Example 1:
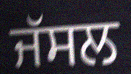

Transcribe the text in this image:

ਜੱਸਲ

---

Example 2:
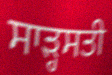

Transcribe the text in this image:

ਸਾੜ੍ਹਸਤੀ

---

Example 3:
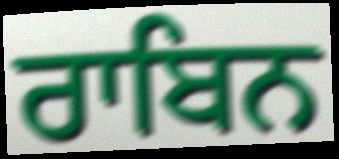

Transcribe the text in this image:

ਰਾਬਿਨ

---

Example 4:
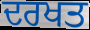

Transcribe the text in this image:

ਦਰਖਤ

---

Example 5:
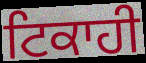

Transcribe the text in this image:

ਟਿਕਾਹੀ